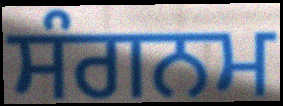
ਸੰਗਨਮ